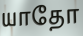
யாதோ